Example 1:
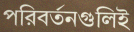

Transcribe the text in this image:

পরিবর্তনগুলিই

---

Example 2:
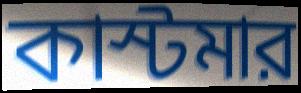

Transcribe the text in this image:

কাস্টমার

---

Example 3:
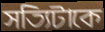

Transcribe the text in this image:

সত্যিটাকে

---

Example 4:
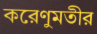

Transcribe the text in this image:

করেণুমতীর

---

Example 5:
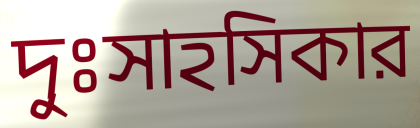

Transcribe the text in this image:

দুঃসাহসিকার